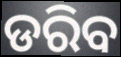
ଡରିବ